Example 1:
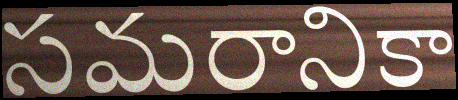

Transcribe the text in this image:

సమరానికా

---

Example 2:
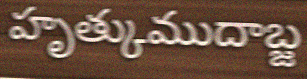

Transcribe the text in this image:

హృత్కుముదాబ్జ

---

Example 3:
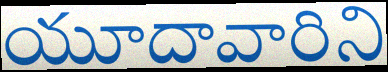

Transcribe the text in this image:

యూదావారిని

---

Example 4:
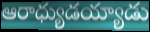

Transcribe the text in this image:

ఆరాధ్యుడయ్యాడు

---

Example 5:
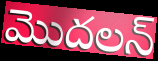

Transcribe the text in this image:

మొదలన్